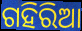
ଗହିରିଆ